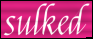
sulked